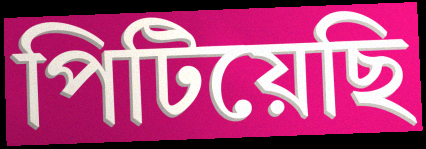
পিটিয়েছি